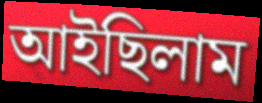
আইছিলাম